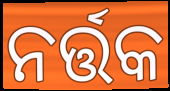
ନର୍ତ୍ତକ